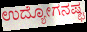
ಉದ್ಯೋಗನಷ್ಟ